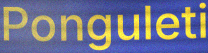
Ponguleti